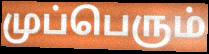
முப்பெரும்